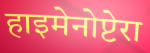
हाइमेनोप्टेरा